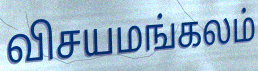
விசயமங்கலம்